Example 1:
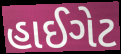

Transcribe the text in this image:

હાઈગેટ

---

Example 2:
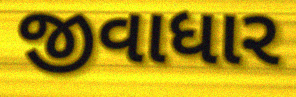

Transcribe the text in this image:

જીવાધાર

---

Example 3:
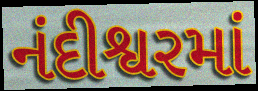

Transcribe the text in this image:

નંદીશ્વરમાં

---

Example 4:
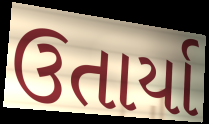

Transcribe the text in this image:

ઉતાર્યા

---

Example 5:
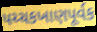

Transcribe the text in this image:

પચ્ચકખાણપૂર્વક